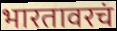
भारतावरचं